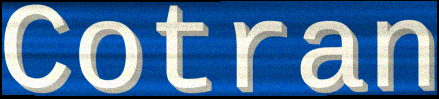
Cotran